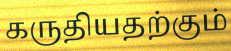
கருதியதற்கும்